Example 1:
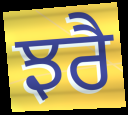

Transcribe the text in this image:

ਝਰੈ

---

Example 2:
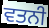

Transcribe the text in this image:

ਵਤਨੀ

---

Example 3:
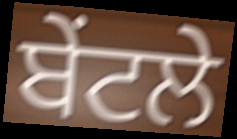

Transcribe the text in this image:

ਬੇਂਟਲੇ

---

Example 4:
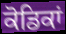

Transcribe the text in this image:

ਕੋਡਿਕਾਂ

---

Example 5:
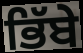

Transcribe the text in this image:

ਭਿੱਬੇ